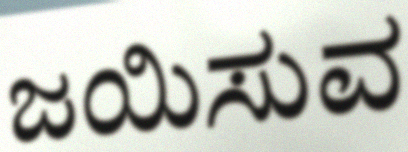
ಜಯಿಸುವ